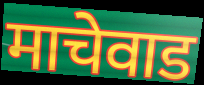
माचेवाड